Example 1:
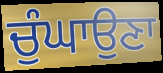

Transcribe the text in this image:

ਚੁੰਘਾਉਣਾ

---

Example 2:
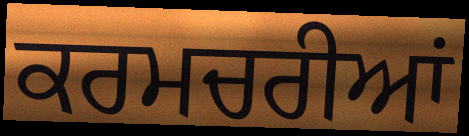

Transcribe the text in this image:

ਕਰਮਚਰੀਆਂ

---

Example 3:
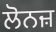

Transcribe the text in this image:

ਲੋਨਜ਼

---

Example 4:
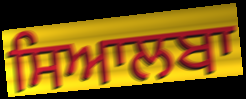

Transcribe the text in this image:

ਸਿਆਲਬਾ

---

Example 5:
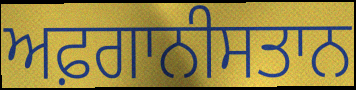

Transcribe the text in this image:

ਅਫ਼ਗਾਨੀਸਤਾਨ